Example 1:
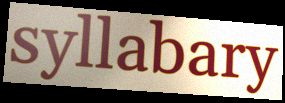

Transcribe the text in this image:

syllabary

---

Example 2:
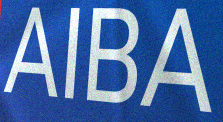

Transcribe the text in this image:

AIBA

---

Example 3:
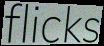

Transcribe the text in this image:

flicks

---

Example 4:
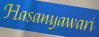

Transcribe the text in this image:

Hasanyawari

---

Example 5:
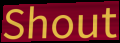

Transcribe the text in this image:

Shout